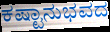
ಕಷ್ಟಾನುಭವದ